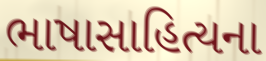
ભાષાસાહિત્યના